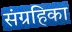
संग्रहिका